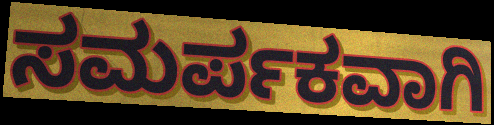
ಸಮರ್ಪಕವಾಗಿ